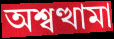
অশ্বত্থামা